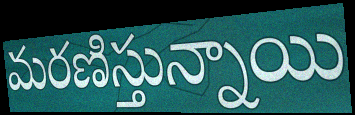
మరణిస్తున్నాయి